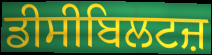
ਡੀਸੀਬਿਲਟਜ਼